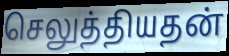
செலுத்தியதன்